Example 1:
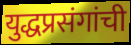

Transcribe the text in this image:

युद्धप्रसंगांची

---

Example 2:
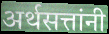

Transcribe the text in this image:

अर्थसत्तांनी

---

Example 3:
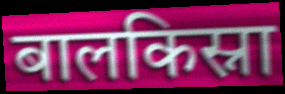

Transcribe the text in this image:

बालकिस्ना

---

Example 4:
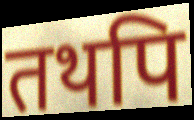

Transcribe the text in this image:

तथपि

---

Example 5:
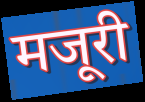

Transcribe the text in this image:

मजूरी